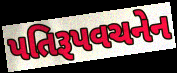
પતિરૂપવચનેન